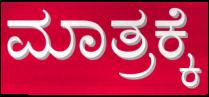
ಮಾತ್ರಕ್ಕೆ